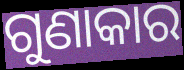
ଗୁଣାକାର